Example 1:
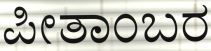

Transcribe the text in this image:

ಪೀತಾಂಬರ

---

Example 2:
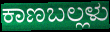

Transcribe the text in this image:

ಕಾಣಬಲ್ಲಳು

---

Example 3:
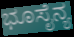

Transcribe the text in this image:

ಭೂಸೈನ್ಯ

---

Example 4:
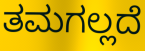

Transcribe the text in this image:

ತಮಗಲ್ಲದೆ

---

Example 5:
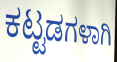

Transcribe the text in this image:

ಕಟ್ಟಡಗಳಾಗಿ